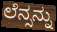
ಲೆನ್ಸನ್ನು